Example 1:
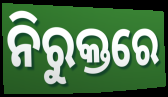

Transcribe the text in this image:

ନିରୁକ୍ତରେ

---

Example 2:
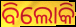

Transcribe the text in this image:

ବିଲୋକି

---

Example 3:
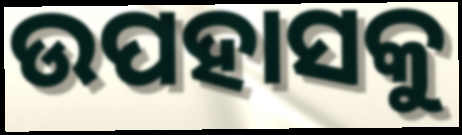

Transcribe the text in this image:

ଉପହାସକୁ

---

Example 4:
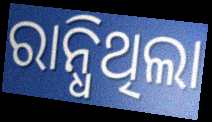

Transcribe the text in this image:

ରାନ୍ଧିଥିଲା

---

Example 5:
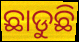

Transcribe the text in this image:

ଛାଡୁଛି